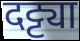
दट्ट्या